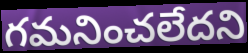
గమనించలేదని